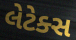
લેટેક્સ